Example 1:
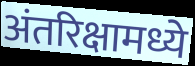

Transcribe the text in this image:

अंतरिक्षामध्ये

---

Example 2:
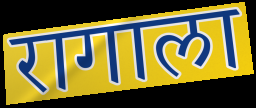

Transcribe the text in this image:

रागाला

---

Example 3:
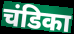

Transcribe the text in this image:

चंडिका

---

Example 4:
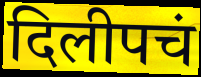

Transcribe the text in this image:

दिलीपचं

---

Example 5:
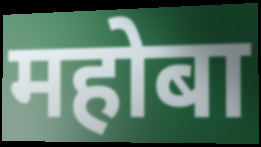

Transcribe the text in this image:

महोबा